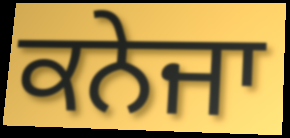
ਕਨੇਜਾ